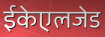
ईकेएलजेड